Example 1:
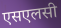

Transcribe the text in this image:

एसएलसी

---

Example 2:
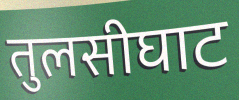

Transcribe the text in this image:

तुलसीघाट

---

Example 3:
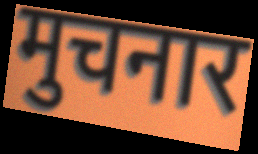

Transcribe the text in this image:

मुचनार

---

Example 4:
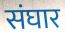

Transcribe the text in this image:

संघार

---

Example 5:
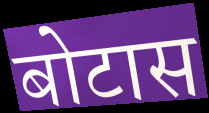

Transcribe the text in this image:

बोटास